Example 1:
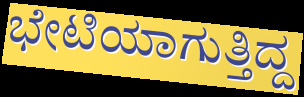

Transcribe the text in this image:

ಭೇಟಿಯಾಗುತ್ತಿದ್ದ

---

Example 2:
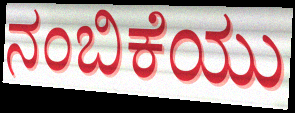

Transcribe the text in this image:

ನಂಬಿಕೆಯು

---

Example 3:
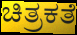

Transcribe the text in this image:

ಚಿತ್ರಕತೆ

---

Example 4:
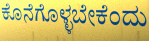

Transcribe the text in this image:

ಕೊನೆಗೊಳ್ಳಬೇಕೆಂದು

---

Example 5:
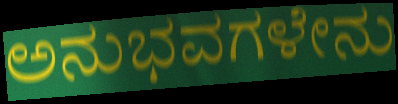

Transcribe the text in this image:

ಅನುಭವಗಳೇನು